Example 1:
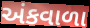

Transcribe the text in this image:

અંકવાળા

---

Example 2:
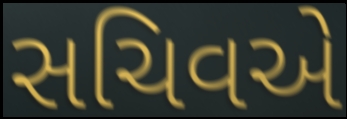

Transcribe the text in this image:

સચિવએ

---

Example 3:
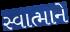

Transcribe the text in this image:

સ્વાત્માને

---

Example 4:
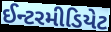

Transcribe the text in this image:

ઈન્ટરમીડિયેટ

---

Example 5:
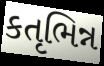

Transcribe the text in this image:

કતૃભિન્ન